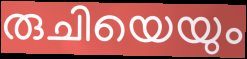
രുചിയെയും